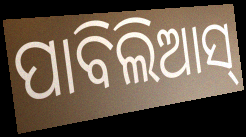
ପାବିଲିଆସ୍